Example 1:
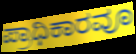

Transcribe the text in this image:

ಪ್ರಾಧಿಕಾರವೂ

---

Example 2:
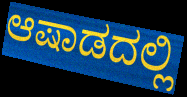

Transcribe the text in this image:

ಆಷಾಡದಲ್ಲಿ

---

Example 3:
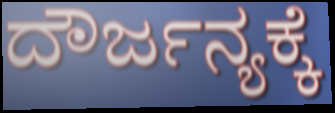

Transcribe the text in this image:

ದೌರ್ಜನ್ಯಕ್ಕೆ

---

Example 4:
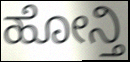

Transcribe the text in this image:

ಹೋನ್ತಿ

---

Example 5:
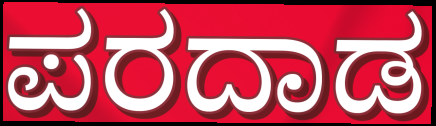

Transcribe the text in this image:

ಪರದಾಡ